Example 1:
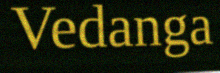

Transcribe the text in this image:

Vedanga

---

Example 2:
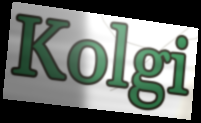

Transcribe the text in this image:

Kolgi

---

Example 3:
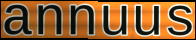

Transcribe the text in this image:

annuus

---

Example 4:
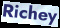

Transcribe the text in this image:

Richey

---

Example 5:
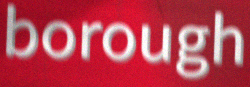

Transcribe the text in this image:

borough